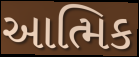
આત્મિક